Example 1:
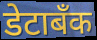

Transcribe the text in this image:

डेटाबँक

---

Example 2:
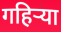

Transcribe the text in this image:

गहिऱ्या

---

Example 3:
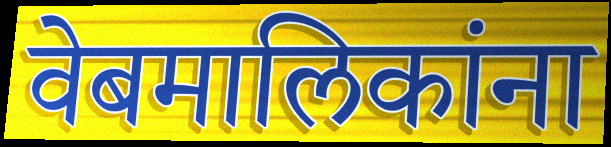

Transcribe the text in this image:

वेबमालिकांना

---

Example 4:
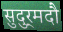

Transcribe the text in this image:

सुदुर्मदौ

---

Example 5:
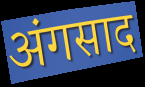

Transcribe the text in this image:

अंगसाद